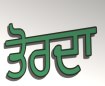
ਤੋਰਦਾ